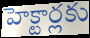
హెక్టార్లకు